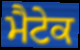
ਮੈਟੇਕ